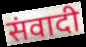
संवादी